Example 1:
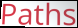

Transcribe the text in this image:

Paths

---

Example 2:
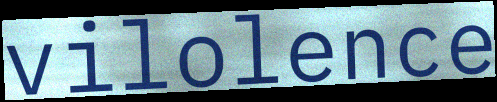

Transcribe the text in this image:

vilolence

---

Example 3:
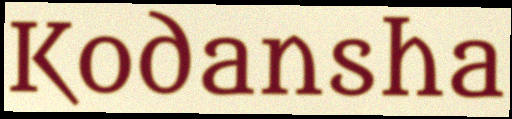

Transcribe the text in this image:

Kodansha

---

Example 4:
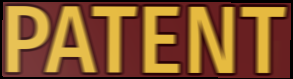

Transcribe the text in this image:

PATENT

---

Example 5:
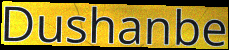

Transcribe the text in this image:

Dushanbe